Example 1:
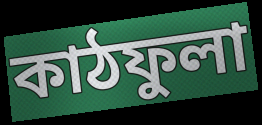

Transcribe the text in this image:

কাঠফুলা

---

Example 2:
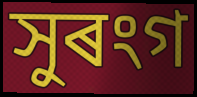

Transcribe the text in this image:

সুৰংগ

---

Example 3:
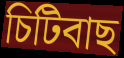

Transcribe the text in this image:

চিটিবাছ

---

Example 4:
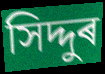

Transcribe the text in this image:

সিদ্দুৰ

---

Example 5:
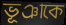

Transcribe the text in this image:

ভূঞাকে